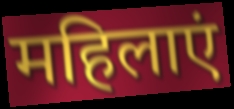
महिलाएं